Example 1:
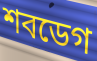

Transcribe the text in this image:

শবডেগ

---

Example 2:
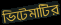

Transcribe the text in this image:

ভিটেমাটির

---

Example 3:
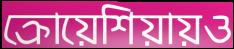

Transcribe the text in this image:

ক্রোয়েশিয়ায়ও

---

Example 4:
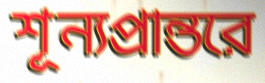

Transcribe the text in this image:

শূন্যপ্রান্তরে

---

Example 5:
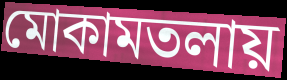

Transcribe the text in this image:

মোকামতলায়